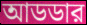
আডডার